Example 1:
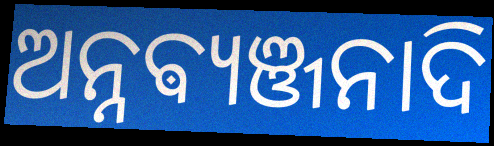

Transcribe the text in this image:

ଅନ୍ନଵ୍ୟଞ୍ଜନାଦି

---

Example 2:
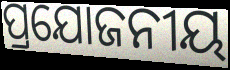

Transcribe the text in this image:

ପ୍ରଯୋଜନୀୟ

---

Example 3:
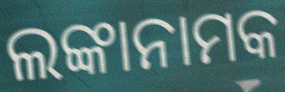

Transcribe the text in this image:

ଲଙ୍କାନାମକ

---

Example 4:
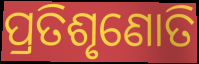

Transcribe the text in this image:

ପ୍ରତିଶୃଣୋତି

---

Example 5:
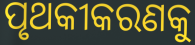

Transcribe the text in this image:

ପୃଥକୀକରଣକୁ